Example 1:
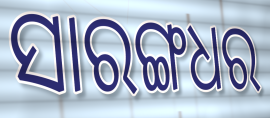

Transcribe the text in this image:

ସାରଙ୍ଗଧର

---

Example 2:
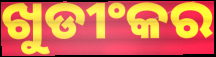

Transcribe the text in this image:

ଖୁଡୀଂକର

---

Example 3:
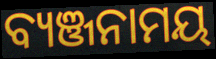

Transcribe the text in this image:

ବ୍ୟଞ୍ଜନାମୟ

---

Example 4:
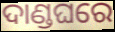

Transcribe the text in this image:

ଦାଣ୍ଡଘରେ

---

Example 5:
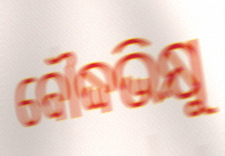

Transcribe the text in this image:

ବୌଦ୍ଧଭିକ୍ଷୁ